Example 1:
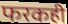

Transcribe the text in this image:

फरकही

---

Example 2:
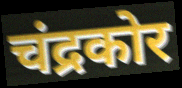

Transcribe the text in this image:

चंद्रकोर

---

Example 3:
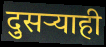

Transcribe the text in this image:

दुसऱ्याही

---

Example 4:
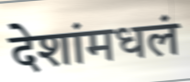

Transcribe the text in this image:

देशांमधलं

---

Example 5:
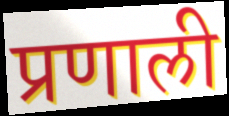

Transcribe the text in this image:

प्रणाली